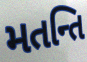
મતન્તિ